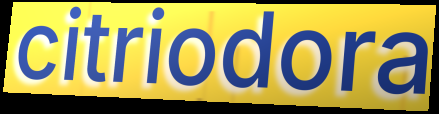
citriodora